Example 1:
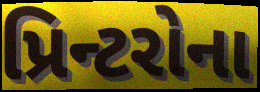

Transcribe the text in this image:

પ્રિન્ટરોના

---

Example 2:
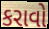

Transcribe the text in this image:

કરાવો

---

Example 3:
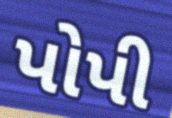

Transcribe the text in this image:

પોપી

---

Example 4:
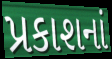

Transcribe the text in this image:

પ્રકાશનાં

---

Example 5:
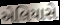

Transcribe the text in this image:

એલિયાસે